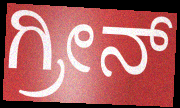
ಗ್ರೀನ್